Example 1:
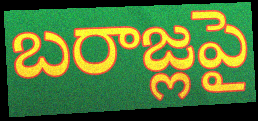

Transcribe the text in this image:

బరాజ్లపై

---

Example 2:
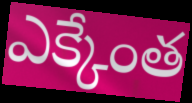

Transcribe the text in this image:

ఎక్కేంత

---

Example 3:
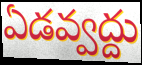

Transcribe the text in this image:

ఏడవ్వద్దు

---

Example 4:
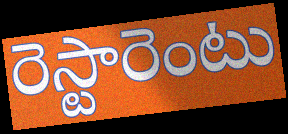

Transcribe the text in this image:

రెస్టారెంటు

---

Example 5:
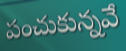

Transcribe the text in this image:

పంచుకున్నవే